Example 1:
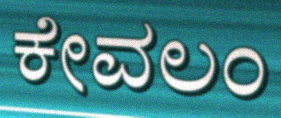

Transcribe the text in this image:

ಕೇವಲಂ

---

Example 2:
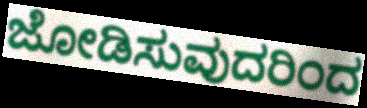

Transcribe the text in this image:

ಜೋಡಿಸುವುದರಿಂದ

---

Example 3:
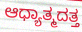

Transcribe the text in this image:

ಆಧ್ಯಾತ್ಮದತ್ತ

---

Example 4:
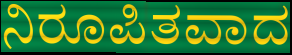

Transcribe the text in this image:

ನಿರೂಪಿತವಾದ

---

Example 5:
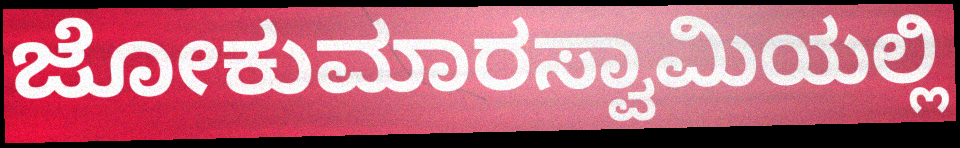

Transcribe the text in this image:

ಜೋಕುಮಾರಸ್ವಾಮಿಯಲ್ಲಿ